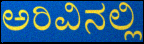
ಅರಿವಿನಲ್ಲಿ